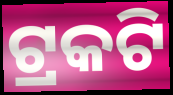
ଟ୍ରକଟି